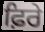
ਫ਼ਿਰੇ